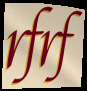
rfrf